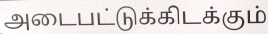
அடைபட்டுக்கிடக்கும்